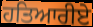
ਹਤਿਆਰੀਏ